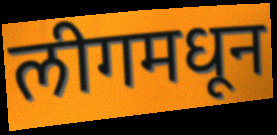
लीगमधून